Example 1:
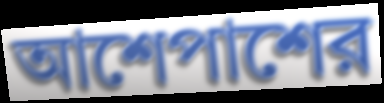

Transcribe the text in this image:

আশেপাশের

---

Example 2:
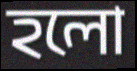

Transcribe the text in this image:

হলো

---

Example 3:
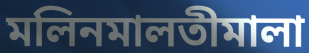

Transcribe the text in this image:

মলিনমালতীমালা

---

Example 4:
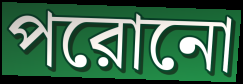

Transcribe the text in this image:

পরোনো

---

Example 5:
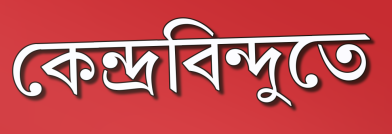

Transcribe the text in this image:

কেন্দ্রবিন্দুতে